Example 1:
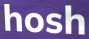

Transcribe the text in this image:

hosh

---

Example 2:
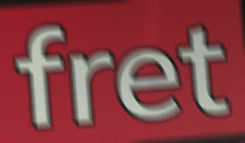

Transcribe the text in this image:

fret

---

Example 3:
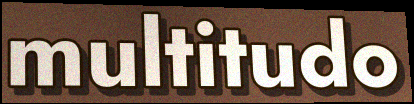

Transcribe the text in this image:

multitudo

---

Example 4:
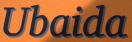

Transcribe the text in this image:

Ubaida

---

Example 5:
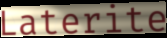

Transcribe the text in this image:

Laterite